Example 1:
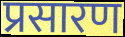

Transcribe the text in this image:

प्रसारण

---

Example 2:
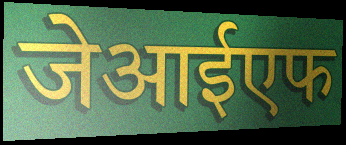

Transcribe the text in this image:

जेआईएफ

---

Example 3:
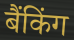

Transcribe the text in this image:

बैंकिंग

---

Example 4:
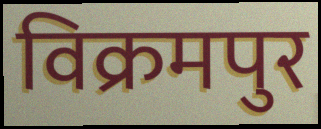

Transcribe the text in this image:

विक्रमपुर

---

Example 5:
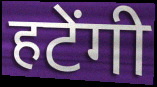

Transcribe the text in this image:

हटेंगी